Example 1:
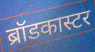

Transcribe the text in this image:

ब्रॉडकास्टर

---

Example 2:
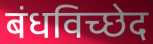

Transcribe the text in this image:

बंधविच्छेद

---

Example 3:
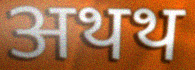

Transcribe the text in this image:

अथथ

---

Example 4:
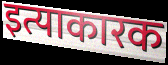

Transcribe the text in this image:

इत्याकारक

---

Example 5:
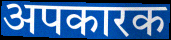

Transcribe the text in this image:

अपकारक